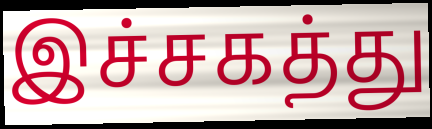
இச்சகத்து